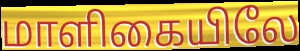
மாளிகையிலே